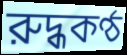
রুদ্ধকণ্ঠ